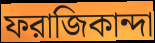
ফরাজিকান্দা